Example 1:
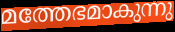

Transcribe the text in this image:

മത്തേഭമാകുന്നു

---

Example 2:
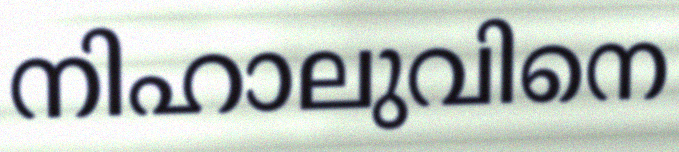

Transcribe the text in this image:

നിഹാലുവിനെ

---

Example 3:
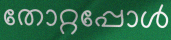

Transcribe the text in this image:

തോറ്റപ്പോൾ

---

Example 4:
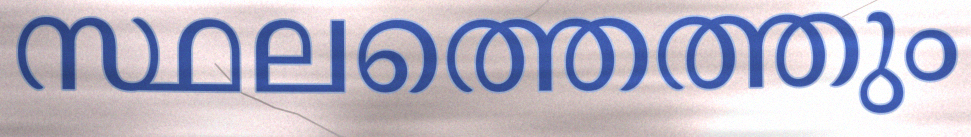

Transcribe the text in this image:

സ്ഥലത്തെത്തും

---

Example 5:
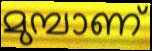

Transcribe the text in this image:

മുമ്പാണ്